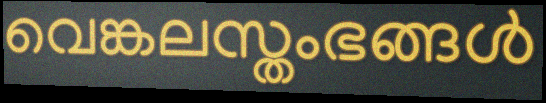
വെങ്കലസ്തംഭങ്ങൾ